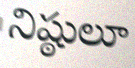
నిష్ఠులూ